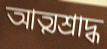
আত্মশ্রাদ্ধ